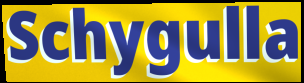
Schygulla